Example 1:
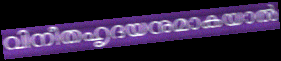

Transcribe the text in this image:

വിനീതഹൃദയനുമാകയാൽ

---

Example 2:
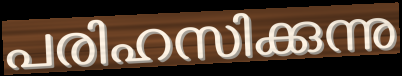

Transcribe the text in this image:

പരിഹസിക്കുന്നു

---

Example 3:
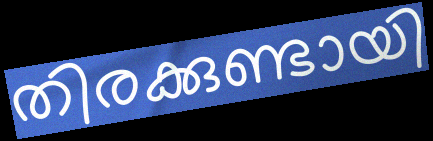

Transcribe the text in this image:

തിരക്കുണ്ടായി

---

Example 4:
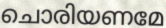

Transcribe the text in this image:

ചൊരിയണമേ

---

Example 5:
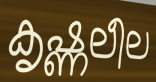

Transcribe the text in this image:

കൃഷ്ണലീല